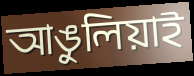
আঙুলিয়াই